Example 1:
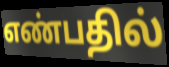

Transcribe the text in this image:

எண்பதில்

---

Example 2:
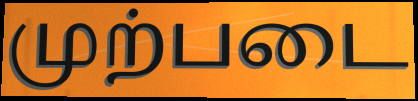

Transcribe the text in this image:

முற்படை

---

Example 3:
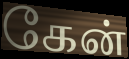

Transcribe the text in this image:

கேன்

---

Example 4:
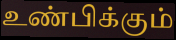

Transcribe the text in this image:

உண்பிக்கும்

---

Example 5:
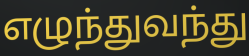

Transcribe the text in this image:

எழுந்துவந்து